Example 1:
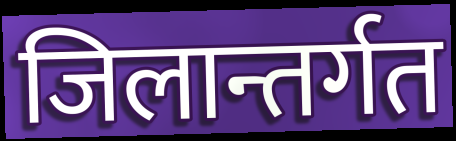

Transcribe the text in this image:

जिलान्तर्गत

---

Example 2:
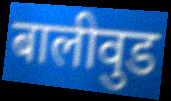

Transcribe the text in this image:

बालीवुड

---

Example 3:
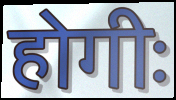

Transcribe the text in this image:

होगीः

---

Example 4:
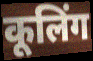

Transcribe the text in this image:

कूलिंग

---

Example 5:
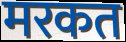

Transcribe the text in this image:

मरकत